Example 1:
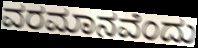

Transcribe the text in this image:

ವರಮಾನವೆಂದು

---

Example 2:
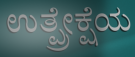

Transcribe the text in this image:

ಉತ್ಪ್ರೇಕ್ಷೆಯ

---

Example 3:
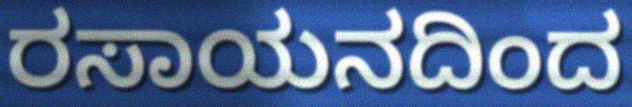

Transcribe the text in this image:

ರಸಾಯನದಿಂದ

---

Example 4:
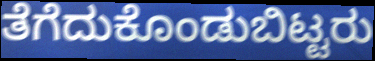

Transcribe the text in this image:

ತೆಗೆದುಕೊಂಡುಬಿಟ್ಟರು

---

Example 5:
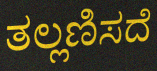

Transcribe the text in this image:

ತಲ್ಲಣಿಸದೆ